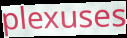
plexuses